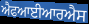
ਐਫਆਈਆਰਐਸ